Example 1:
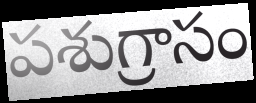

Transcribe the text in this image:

పశుగ్రాసం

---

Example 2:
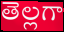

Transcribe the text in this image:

తెల్లగా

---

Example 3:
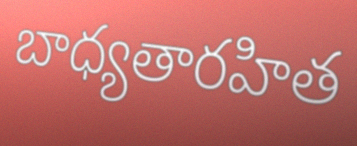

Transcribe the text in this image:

బాధ్యతారహిత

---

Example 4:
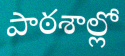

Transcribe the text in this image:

పాఠశాల్లో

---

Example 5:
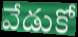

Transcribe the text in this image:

వేడుకో